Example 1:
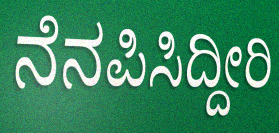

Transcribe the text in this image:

ನೆನಪಿಸಿದ್ದೀರಿ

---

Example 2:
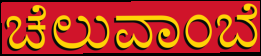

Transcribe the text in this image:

ಚೆಲುವಾಂಬೆ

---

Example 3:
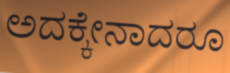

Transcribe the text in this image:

ಅದಕ್ಕೇನಾದರೂ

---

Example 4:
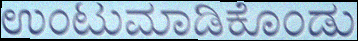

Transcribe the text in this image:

ಉಂಟುಮಾಡಿಕೊಂಡು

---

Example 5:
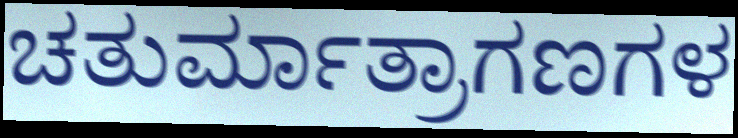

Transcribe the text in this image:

ಚತುರ್ಮಾತ್ರಾಗಣಗಳ